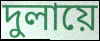
দুলায়ে